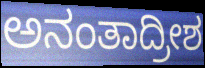
ಅನಂತಾದ್ರೀಶ